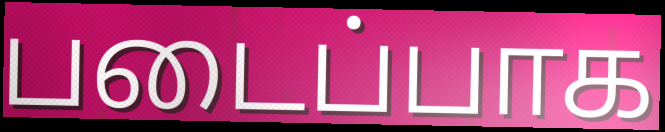
படைப்பாக